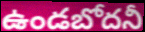
ఉండబోదనీ